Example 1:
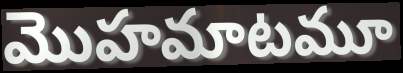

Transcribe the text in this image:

మొహమాటమూ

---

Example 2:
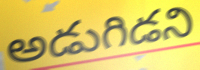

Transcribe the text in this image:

అడుగిడని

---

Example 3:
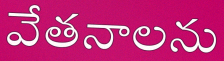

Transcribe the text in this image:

వేతనాలను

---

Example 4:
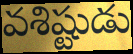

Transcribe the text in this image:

వశిష్టుడు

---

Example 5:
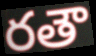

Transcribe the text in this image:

రతౌ